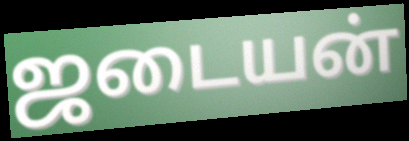
ஜடையன்